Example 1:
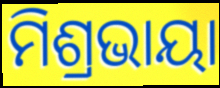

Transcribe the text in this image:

ମିଶ୍ରଭାୟା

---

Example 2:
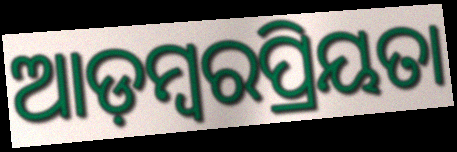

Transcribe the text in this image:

ଆଡ଼ମ୍ବରପ୍ରିୟତା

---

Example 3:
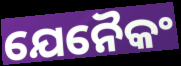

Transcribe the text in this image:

ଯେନୈକଂ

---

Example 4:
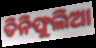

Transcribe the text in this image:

ତିନିଫୁଲିଆ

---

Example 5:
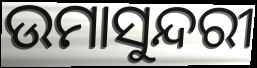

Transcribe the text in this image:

ଉମାସୁନ୍ଦରୀ